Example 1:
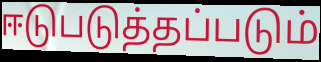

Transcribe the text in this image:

ஈடுபடுத்தப்படும்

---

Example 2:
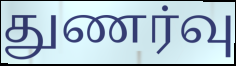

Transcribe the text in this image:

துணர்வு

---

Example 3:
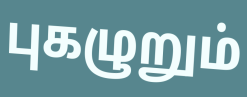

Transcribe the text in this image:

புகழுறும்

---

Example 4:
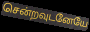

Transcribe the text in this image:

சென்றவுடனேயே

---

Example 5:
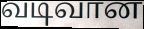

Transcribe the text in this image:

வடிவான